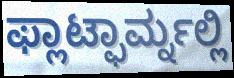
ಫ್ಲಾಟ್ಫಾರ್ಮ್ನಲ್ಲಿ